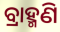
ବ୍ରାହ୍ମଣି